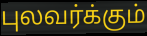
புலவர்க்கும்